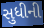
સુધીની